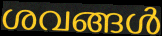
ശവങ്ങൾ